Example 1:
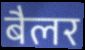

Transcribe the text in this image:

बैलर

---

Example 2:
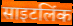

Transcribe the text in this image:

साइटलिंक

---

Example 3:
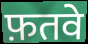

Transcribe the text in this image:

फ़तवे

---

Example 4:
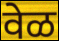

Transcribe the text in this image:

वेळ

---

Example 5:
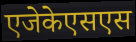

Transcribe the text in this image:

एजेकेएसएस